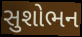
સુશોભન